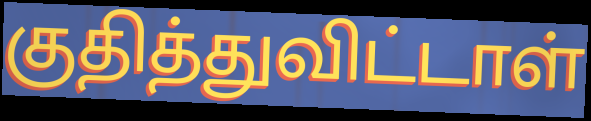
குதித்துவிட்டாள்